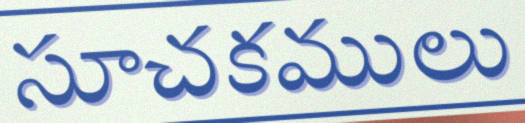
సూచకములు